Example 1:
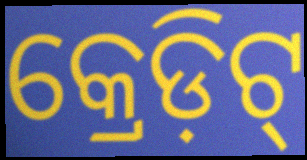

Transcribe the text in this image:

କ୍ରେଡ଼ିଟ୍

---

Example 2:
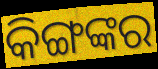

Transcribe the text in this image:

କିଙ୍ଗଙ୍କର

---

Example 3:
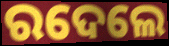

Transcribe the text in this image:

ରଦେଲେ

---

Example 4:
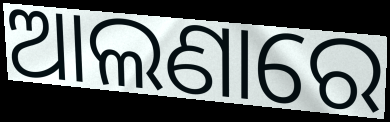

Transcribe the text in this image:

ଆଲଣାରେ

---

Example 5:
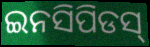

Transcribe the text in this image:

ଇନସିପିଡସ୍